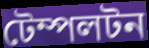
টেম্পলটন